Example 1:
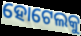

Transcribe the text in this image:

ହୋଟେଲକୁ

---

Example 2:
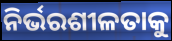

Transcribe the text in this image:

ନିର୍ଭରଶୀଳତାକୁ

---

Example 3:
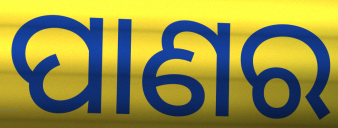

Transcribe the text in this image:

ପାଣର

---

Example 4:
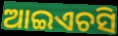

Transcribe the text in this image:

ଆଇଏଚସି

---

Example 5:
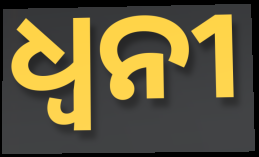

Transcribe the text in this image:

ଧ୍ବନୀ